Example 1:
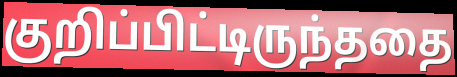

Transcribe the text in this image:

குறிப்பிட்டிருந்ததை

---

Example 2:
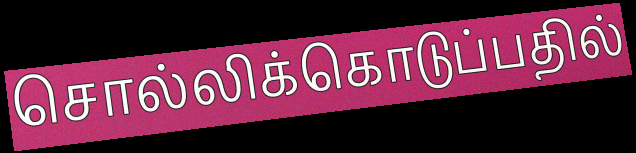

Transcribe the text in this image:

சொல்லிக்கொடுப்பதில்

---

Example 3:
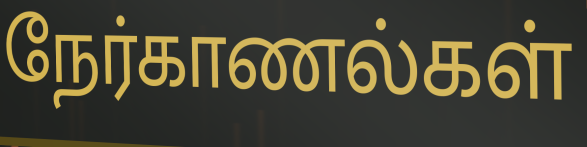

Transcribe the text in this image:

நேர்காணல்கள்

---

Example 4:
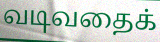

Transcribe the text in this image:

வடிவதைக்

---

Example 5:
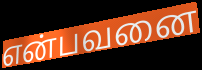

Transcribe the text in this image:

என்பவனை